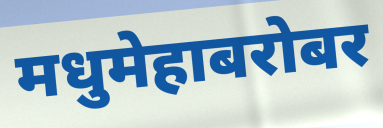
मधुमेहाबरोबर